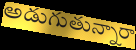
అడుగుతున్నారా